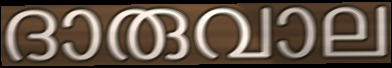
ദാരുവാല